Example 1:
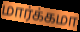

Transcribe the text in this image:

மார்க்கமா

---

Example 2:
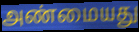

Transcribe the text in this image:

அண்மையது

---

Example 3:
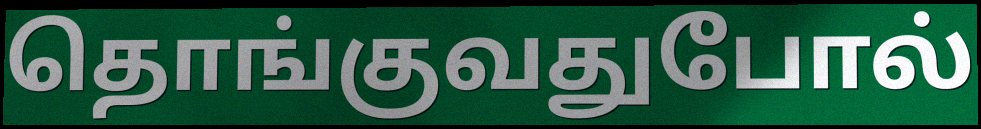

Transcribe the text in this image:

தொங்குவதுபோல்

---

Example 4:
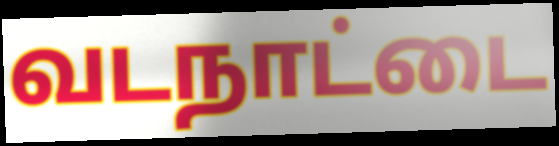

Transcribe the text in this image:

வடநாட்டை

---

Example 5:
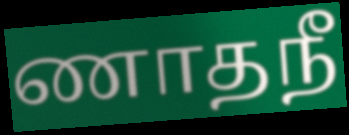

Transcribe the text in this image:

ணாதநீ